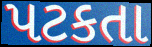
પટકતા